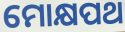
ମୋକ୍ଷପଥ